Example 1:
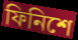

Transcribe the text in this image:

ফিনিশে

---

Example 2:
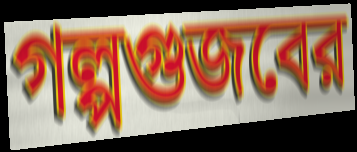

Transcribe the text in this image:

গল্পগুজবের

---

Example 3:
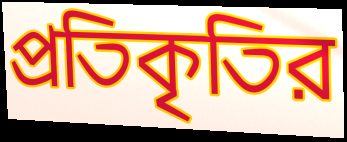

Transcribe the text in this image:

প্রতিকৃতির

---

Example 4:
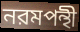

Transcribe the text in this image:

নরমপন্থী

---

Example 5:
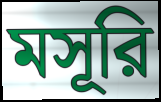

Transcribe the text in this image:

মসূরি